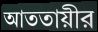
আততায়ীর